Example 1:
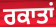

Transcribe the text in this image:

ਰਕਾਤਾਂ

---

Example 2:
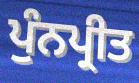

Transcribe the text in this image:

ਪੁੰਨਪ੍ਰੀਤ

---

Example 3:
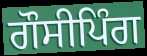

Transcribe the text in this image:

ਗੌਸੀਪਿੰਗ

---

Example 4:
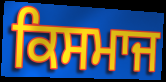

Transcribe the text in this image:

ਕਿਸਮਾਜ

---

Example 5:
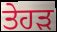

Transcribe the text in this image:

ਤੇਹੜ